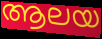
ആലയ